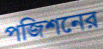
পজিশনের